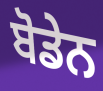
ਬੋਡੇਨ